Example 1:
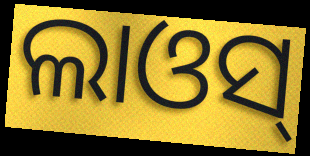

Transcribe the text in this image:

ଲାଓସ୍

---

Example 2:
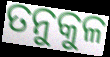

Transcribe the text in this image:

ତନୁକୁଳ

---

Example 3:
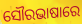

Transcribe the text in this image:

ସୌରଭାଷାରେ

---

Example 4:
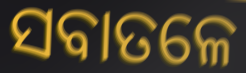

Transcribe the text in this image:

ସବାତଳେ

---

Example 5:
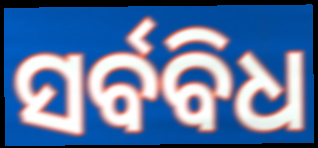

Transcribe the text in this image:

ସର୍ବବିଧ